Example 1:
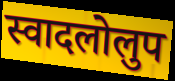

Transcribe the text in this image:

स्वादलोलुप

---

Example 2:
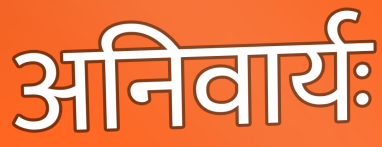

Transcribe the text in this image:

अनिवार्यः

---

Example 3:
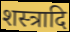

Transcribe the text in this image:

शस्त्रादि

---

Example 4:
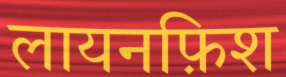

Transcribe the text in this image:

लायनफ़िश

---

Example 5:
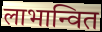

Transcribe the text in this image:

लाभान्वित